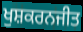
ਖੁਸ਼ਕਰਨਜੀਤ